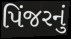
પિંજરનું